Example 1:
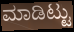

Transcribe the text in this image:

ಮಾಡಿಟ್ಟು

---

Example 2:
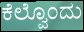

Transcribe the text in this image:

ಕೆಲ್ವೊಂದು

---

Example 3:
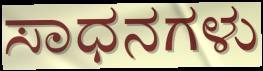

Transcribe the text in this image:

ಸಾಧನಗಳು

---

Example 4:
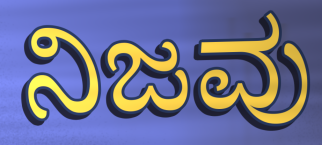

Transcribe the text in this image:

ನಿಜವು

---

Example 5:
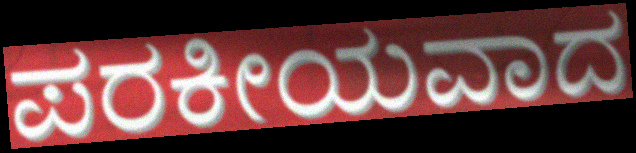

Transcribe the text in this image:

ಪರಕೀಯವಾದ